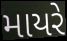
માયરે